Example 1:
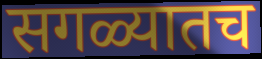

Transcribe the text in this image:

सगळ्यातच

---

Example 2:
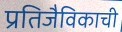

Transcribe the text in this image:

प्रतिजैविकाची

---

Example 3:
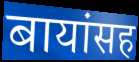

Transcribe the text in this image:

बायांसह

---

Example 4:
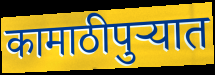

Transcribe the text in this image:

कामाठीपुर्‍यात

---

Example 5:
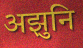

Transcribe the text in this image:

अझुनि